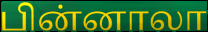
பின்னாலா